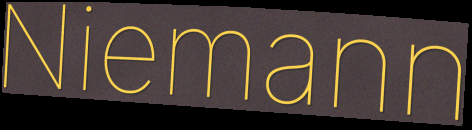
Niemann